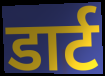
डार्ट